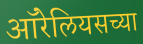
ऑरेलियसच्या